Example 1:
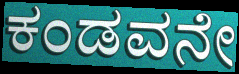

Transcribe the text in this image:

ಕಂಡವನೇ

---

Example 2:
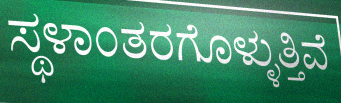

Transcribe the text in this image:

ಸ್ಥಳಾಂತರಗೊಳ್ಳುತ್ತಿವೆ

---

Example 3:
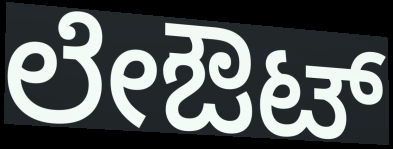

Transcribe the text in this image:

ಲೇಔಟ್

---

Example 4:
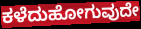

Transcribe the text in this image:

ಕಳೆದುಹೋಗುವುದೇ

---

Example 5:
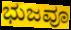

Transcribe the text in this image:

ಭುಜವೂ